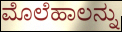
ಮೊಲೆಹಾಲನ್ನು